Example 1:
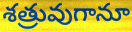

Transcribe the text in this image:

శత్రువుగానూ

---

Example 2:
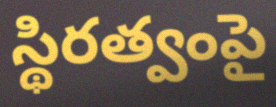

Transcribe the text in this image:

స్థిరత్వంపై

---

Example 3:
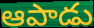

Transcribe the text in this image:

ఆపాడు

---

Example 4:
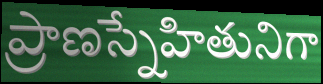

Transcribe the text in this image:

ప్రాణస్నేహితునిగా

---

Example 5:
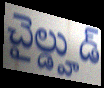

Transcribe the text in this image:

చైల్డ్హుడ్